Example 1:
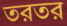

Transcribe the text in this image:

তরতর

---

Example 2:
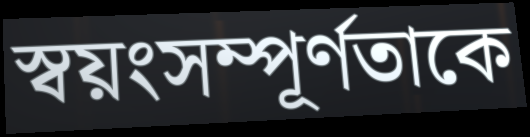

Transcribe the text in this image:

স্বয়ংসম্পূর্ণতাকে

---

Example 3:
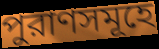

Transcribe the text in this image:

পুরাণসমূহে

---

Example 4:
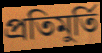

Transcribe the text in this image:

প্রতিমুর্তি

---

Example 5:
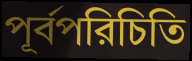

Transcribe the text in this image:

পূর্বপরিচিতি